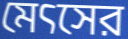
মেৎসের